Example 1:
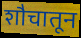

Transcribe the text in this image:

शौचातून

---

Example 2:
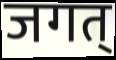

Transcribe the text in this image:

जगत्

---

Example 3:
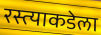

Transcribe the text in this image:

रस्त्याकडेला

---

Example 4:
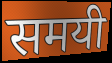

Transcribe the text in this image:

समयी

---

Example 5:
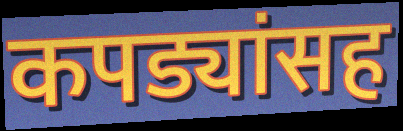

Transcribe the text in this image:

कपड्यांसह